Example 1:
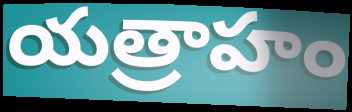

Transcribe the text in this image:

యత్రాహం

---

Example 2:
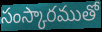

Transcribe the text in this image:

సంస్కారముతో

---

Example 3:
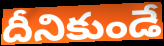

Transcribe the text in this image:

దీనికుండే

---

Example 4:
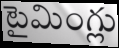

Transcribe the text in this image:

టైమింగ్లు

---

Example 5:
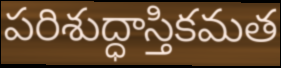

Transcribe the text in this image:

పరిశుద్ధాస్తికమత